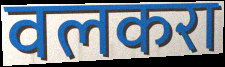
वलकरा